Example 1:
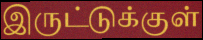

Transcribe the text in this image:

இருட்டுக்குள்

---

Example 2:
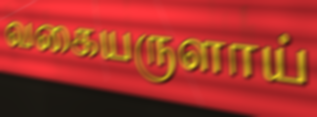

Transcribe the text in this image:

வகையருளாய்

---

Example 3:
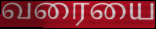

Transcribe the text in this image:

வரையை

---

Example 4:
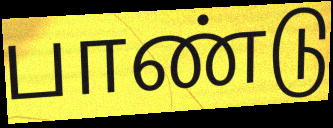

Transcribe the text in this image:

பாண்டு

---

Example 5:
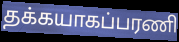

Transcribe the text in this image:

தக்கயாகப்பரணி